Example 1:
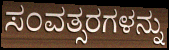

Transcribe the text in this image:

ಸಂವತ್ಸರಗಳನ್ನು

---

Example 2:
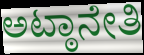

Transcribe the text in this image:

ಅಟ್ಠಾನೇತಿ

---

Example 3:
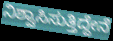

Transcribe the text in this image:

ನಿಶ್ವಾಸಿಸುತ್ತಿದ್ದೇನೆ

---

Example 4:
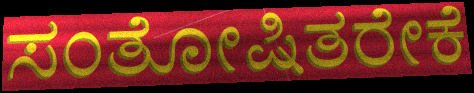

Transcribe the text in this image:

ಸಂತೋಷಿತರೇಕೆ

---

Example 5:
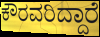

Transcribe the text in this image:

ಕೌರವರಿದ್ದಾರೆ